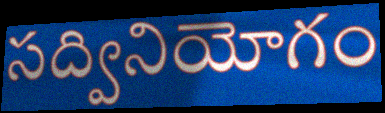
సద్వినియోగం